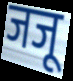
जजू